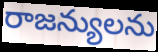
రాజన్యులను